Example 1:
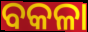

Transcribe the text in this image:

ବକଳା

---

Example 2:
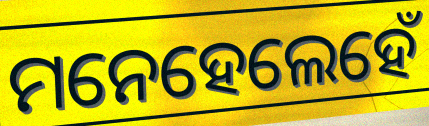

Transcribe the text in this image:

ମନେହେଲେହେଁ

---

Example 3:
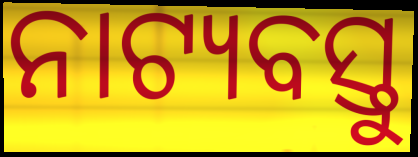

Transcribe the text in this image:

ନାଟ୍ୟବସ୍ତୁ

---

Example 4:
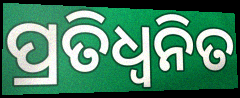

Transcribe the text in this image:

ପ୍ରତିଧ୍ଵନିତ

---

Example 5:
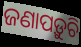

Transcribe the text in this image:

ଜଣାପଡ଼ୁଚି